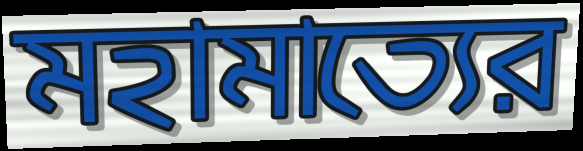
মহামাত্যের